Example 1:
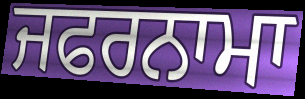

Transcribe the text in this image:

ਜਫਰਨਾਮਾ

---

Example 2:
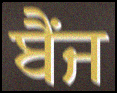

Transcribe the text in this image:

ਬੈਂਜ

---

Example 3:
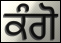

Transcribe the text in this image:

ਕੰਗੋ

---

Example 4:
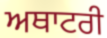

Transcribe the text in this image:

ਅਥਾਟਰੀ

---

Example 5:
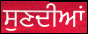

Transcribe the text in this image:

ਸੁਣਦੀਆਂ